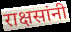
राक्षसांनी